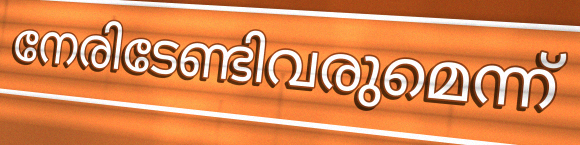
നേരിടേണ്ടിവരുമെന്ന്